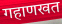
गहाणखत